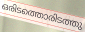
ഒരിടത്തൊരിടത്തു